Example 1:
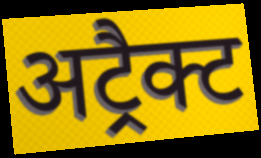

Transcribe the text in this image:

अट्रैक्ट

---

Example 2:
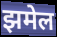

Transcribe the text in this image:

झमेल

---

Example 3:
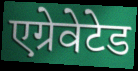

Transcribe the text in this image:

एग्रेवेटेड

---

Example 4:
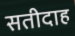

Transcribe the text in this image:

सतीदाह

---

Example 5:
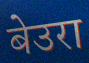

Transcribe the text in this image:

बेउरा